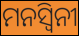
ମନସ୍ୱିନୀ